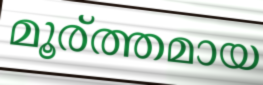
മൂര്ത്തമായ